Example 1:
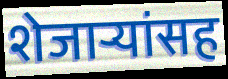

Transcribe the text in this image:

शेजाऱ्यांसह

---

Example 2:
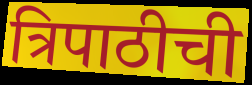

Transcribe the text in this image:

त्रिपाठीची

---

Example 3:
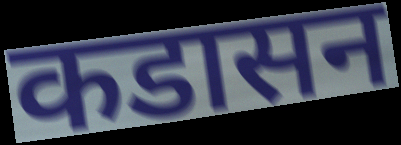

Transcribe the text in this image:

कडासन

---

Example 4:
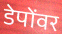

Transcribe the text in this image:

डेपोंवर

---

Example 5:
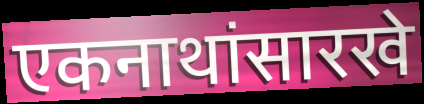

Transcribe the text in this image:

एकनाथांसारखे